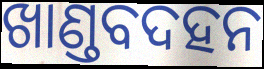
ଖାଣ୍ଡବଦହନ